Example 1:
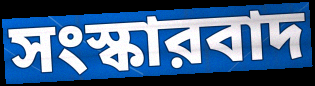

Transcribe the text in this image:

সংস্কারবাদ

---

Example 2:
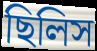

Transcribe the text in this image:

ছিলিস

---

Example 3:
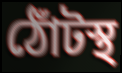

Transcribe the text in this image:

ঠোঁটস্থ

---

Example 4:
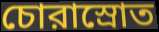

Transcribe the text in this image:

চোরাস্রোত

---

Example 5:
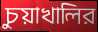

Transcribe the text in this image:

চুয়াখালির